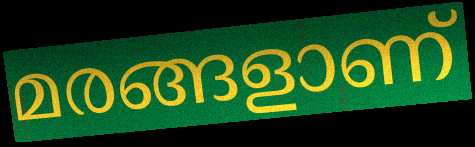
മരങ്ങളാണ്